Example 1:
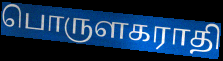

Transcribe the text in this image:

பொருளகராதி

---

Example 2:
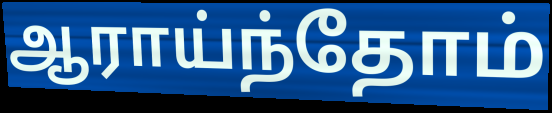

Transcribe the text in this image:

ஆராய்ந்தோம்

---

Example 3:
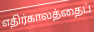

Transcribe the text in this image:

எதிர்காலத்தைப்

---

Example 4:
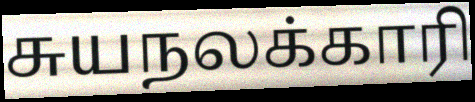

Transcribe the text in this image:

சுயநலக்காரி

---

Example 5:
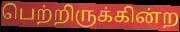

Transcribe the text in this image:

பெற்றிருக்கின்ற